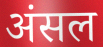
अंसल